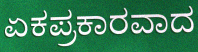
ಏಕಪ್ರಕಾರವಾದ